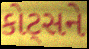
કોટ્સને